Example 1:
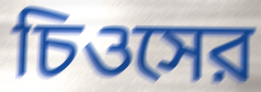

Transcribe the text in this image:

চিওসের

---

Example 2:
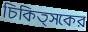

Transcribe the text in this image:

চিকিত্সকের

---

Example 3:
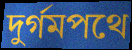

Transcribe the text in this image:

দুর্গমপথে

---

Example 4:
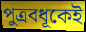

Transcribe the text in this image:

পুত্রবধূকেই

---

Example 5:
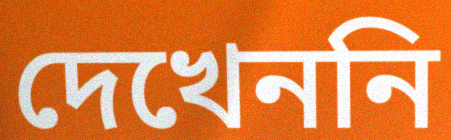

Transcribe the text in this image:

দেখেননি